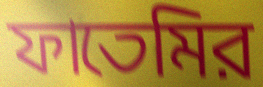
ফাতেমির